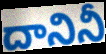
దానినీ